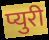
प्युरी